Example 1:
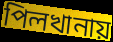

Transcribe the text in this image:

পিলখানায়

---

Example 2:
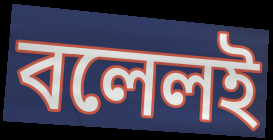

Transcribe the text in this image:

বলেলই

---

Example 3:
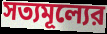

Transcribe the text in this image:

সত্যমূল্যের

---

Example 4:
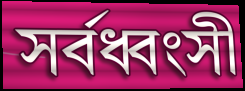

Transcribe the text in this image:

সর্বধ্বংসী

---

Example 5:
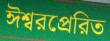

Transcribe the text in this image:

ঈশ্বরপ্রেরিত